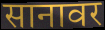
सानावर